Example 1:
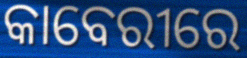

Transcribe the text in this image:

କାବେରୀରେ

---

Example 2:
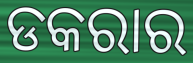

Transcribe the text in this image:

ଡକରାର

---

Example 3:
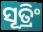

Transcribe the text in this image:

ସୂତ୍ରିଂ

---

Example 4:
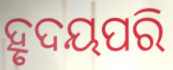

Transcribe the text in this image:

ହୃଦୟପରି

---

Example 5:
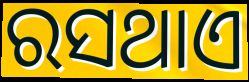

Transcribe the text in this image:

ରସଥାଏ